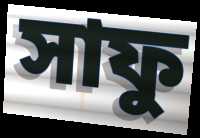
সাফু